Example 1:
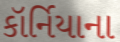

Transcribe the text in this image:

કૉર્નિયાના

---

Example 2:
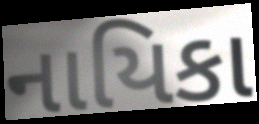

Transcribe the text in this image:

નાયિકા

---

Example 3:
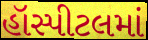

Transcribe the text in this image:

હૉસ્પીટલમાં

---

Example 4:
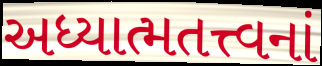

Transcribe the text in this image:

અધ્યાત્મતત્ત્વનાં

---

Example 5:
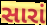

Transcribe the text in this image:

સારાં